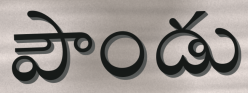
పౌండు